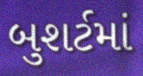
બુશર્ટમાં